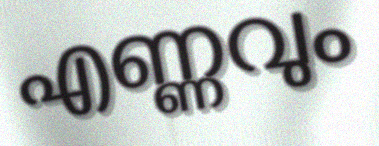
എണ്ണവും